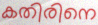
കതിരിനെ